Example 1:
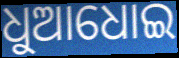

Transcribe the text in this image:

ଧୁଆଧୋଇ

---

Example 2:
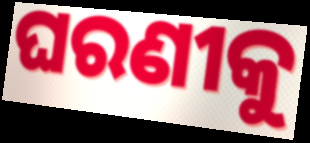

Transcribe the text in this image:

ଘରଣୀକୁ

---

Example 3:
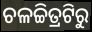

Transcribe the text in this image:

ଚଳଚ୍ଚିତ୍ରଟିରୁ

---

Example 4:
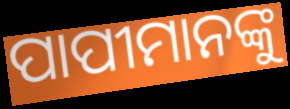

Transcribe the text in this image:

ପାପୀମାନଙ୍କୁ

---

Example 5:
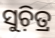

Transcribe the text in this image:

ସୁଚ଼ିତ୍ର